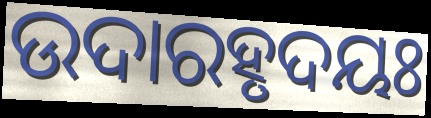
ଉଦାରହୃଦୟଃ